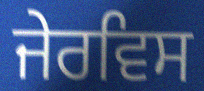
ਜੇਰਵਿਸ